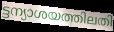
ട്ടന്യാശയത്തിലതി